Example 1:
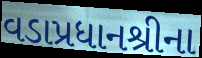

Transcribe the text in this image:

વડાપ્રધાનશ્રીના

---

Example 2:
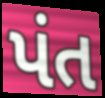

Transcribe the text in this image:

પંત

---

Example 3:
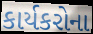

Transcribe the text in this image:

કાર્યકરોના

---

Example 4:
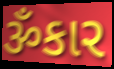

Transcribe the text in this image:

ૐકાર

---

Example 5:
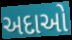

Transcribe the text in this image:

અદાઓ